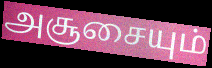
அசூசையும்